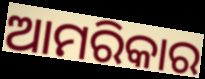
ଆମରିକାର